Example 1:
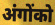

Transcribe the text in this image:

अंगोंको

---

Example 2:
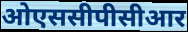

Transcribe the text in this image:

ओएससीपीसीआर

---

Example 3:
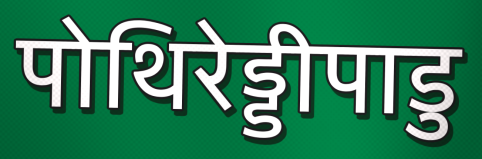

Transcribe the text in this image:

पोथिरेड्डीपाडु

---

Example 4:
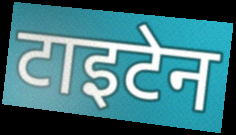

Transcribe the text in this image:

टाइटेन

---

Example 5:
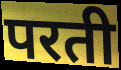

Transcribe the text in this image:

परती